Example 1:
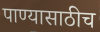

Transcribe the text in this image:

पाण्यासाठीच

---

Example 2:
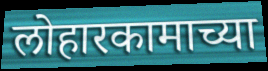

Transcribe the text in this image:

लोहारकामाच्या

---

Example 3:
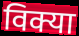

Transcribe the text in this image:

विक्या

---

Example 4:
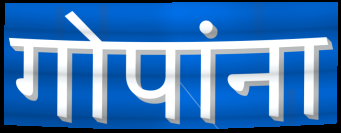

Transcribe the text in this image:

गोपांना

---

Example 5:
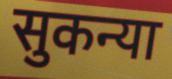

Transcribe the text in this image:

सुकन्या